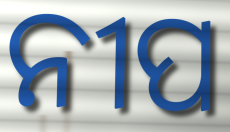
ନୀପ